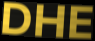
DHE